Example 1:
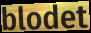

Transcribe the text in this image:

blodet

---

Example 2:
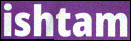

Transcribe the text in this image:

ishtam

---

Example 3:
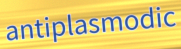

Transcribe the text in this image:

antiplasmodic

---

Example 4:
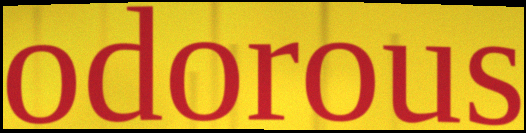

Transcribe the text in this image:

odorous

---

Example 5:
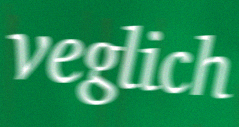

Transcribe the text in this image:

veglich